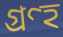
গ্ৰণ্হ